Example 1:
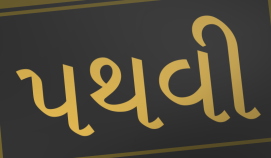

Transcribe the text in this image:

પથવી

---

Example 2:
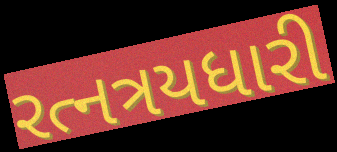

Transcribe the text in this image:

રત્નત્રયધારી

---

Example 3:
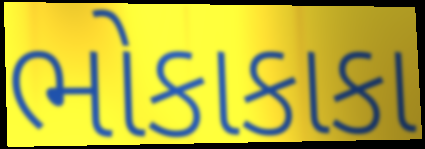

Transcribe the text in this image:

ભોકાકાકા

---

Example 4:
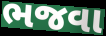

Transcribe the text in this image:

ભજવા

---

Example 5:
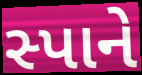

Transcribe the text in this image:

સ્પાને